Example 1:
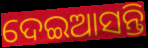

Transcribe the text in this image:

ଦେଇଆସନ୍ତି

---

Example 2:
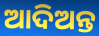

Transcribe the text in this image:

ଆଦିଅନ୍ତ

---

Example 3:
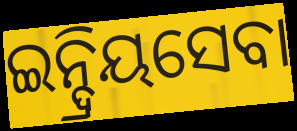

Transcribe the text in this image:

ଇନ୍ଦ୍ରିୟସେବା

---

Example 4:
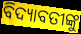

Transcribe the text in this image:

ବିଦ୍ୟାବତୀଙ୍କୁ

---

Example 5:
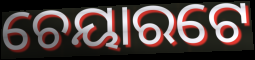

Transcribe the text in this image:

ଚେୟାରଟେ